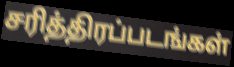
சரித்திரப்படங்கள்